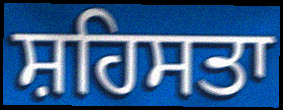
ਸ਼ਹਿਸਤਾ